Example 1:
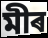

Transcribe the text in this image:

মীৰ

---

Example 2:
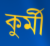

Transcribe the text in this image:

কুৰ্মী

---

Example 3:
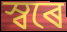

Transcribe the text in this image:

স্বৰে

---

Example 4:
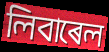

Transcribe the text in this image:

লিবাৰেল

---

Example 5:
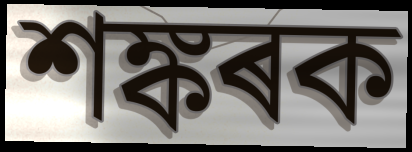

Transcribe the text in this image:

শঙ্কৰক